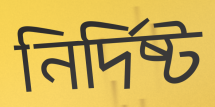
নিৰ্দিষ্ট